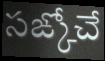
సఙ్కోచే